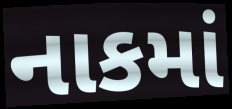
નાકમાં